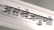
असंखेजगुणो